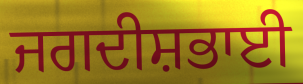
ਜਗਦੀਸ਼ਭਾਈ